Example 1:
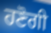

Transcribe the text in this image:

ਹਣੋਗੀ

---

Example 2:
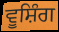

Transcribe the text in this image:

ਵੂਸ਼ਿੰਗ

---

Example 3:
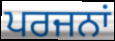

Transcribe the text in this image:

ਪਰਜਨਾਂ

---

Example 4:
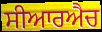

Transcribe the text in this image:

ਸੀਆਰਐਚ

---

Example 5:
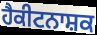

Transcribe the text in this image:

ਹੈਕੀਟਨਾਸ਼ਕ